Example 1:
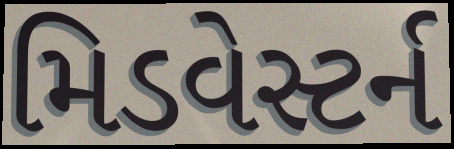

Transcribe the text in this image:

મિડવેસ્ટર્ન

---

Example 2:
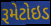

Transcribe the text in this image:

રૂમેટોઇડ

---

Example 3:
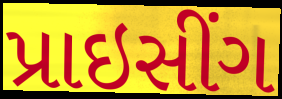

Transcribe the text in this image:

પ્રાઇસીંગ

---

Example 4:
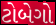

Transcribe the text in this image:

ટોબેગો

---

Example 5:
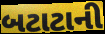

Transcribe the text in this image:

બટાટાની